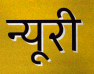
न्यूरी